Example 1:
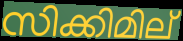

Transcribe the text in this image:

സിക്കിമില്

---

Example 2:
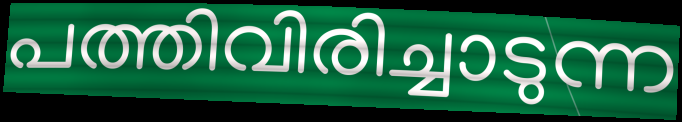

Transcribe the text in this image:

പത്തിവിരിച്ചാടുന്ന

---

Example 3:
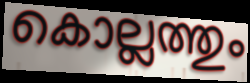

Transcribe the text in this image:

കൊല്ലത്തും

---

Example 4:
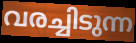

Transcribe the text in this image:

വരച്ചിടുന്ന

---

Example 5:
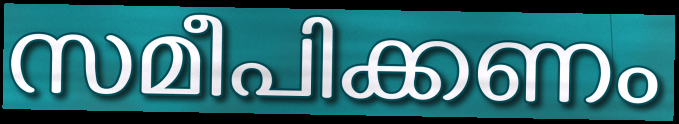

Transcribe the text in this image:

സമീപിക്കണം